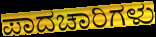
ಪಾದಚಾರಿಗಳು